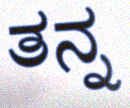
ತನ್ನ